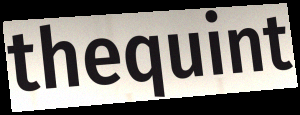
thequint